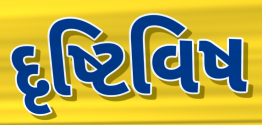
દૃષ્ટિવિષ